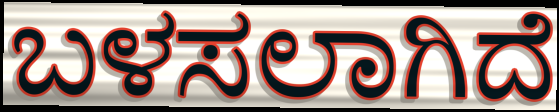
ಬಳಸಲಾಗಿದೆ